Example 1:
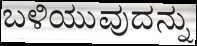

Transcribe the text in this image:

ಬಳಿಯುವುದನ್ನು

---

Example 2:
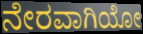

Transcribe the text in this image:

ನೇರವಾಗಿಯೋ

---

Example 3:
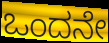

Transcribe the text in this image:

ಒಂದನೇ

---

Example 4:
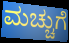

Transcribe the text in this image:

ಮಚ್ಚುಗೆ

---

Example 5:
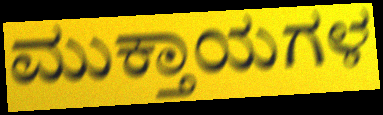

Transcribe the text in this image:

ಮುಕ್ತಾಯಗಳ